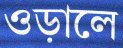
ওড়ালে